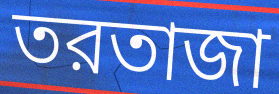
তরতাজা